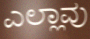
ಎಲ್ಲಾವು